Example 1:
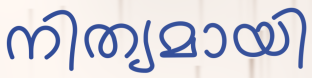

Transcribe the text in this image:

നിത്യമായി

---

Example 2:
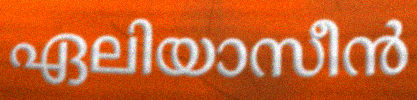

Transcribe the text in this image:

ഏലിയാസീൻ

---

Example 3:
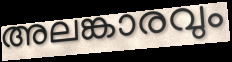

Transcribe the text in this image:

അലങ്കാരവും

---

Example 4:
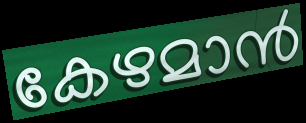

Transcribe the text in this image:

കേഴമാൻ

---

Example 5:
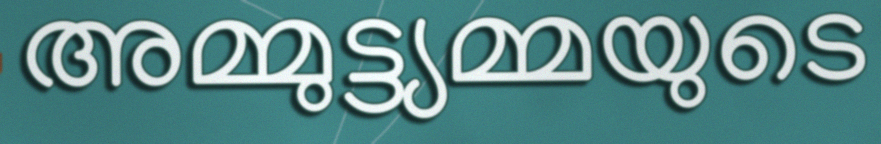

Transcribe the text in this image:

അമ്മുട്ട്യമ്മയുടെ